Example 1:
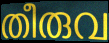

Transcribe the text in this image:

തീരുവ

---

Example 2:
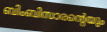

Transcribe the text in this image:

ബിംബിസാരന്റെയും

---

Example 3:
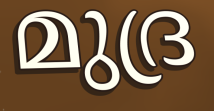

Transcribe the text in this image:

മുദ്ര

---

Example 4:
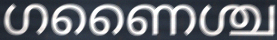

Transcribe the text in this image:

ഗണൈശ്ച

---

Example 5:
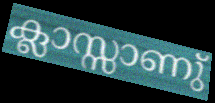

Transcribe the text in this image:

ക്ലാസ്സാണു്